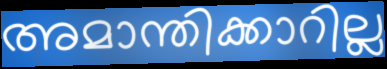
അമാന്തിക്കാറില്ല